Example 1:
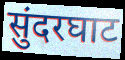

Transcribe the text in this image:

सुंदरघाट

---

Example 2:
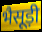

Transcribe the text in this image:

भैसूड़ी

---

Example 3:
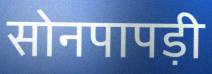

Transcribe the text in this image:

सोनपापड़ी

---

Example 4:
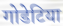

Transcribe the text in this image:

गोडेटिया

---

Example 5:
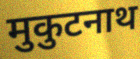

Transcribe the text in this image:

मुकुटनाथ